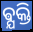
ଵ୍ଯକ୍ତି